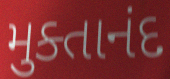
મુક્તાનંદ